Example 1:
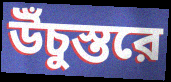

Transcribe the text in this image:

উঁচুস্তরে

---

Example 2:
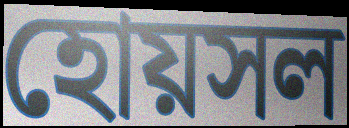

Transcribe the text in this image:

হোয়সল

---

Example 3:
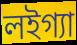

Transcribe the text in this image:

লইগ্যা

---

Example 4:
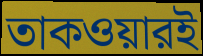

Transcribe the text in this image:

তাকওয়ারই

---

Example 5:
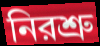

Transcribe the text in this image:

নিরশ্রু